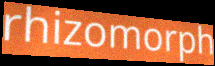
rhizomorph